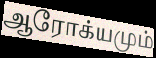
ஆரோக்யமும்